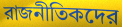
রাজনীতিকদের